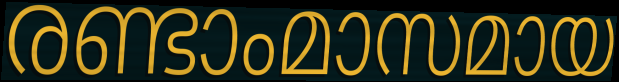
രണ്ടാംമാസമായ